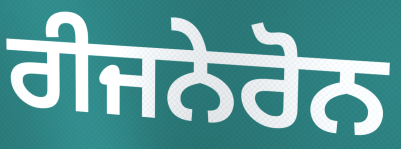
ਰੀਜਨੇਰੋਨ